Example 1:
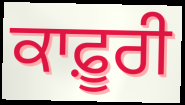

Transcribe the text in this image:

ਕਾਫ਼ੂਰੀ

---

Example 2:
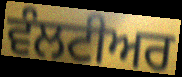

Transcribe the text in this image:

ਵੰਲਟੀਅਰ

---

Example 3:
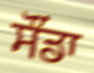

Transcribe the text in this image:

ਸੌਂਡਾ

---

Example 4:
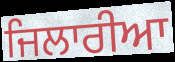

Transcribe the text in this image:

ਜਿਲਾਰੀਆ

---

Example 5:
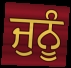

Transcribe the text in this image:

ਜੁਨੂੰ